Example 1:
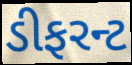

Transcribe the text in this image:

ડીફરન્ટ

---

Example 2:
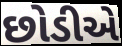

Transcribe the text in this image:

છોડીએ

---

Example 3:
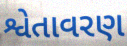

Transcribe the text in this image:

શ્વેતાવરણ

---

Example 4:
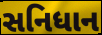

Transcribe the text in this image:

સનિધાન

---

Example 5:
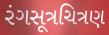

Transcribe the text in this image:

રંગસૂત્રચિત્રણ